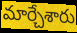
మార్చేశారు